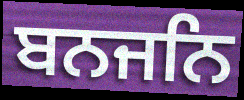
ਬਨਜਨਿ